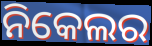
ନିକେଲର